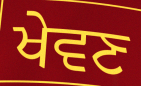
ਖੇਵਣ